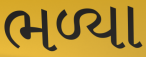
ભળ્યા